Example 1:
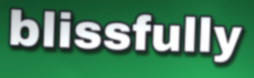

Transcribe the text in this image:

blissfully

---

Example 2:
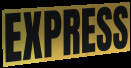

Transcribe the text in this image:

EXPRESS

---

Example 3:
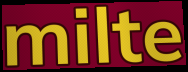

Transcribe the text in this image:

milte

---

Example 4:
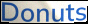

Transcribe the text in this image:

Donuts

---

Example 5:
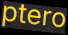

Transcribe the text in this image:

ptero